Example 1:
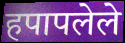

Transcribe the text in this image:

हपापलेले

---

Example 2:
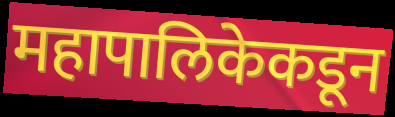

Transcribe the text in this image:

महापालिकेकडून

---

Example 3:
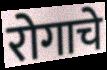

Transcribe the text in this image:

रोगाचे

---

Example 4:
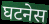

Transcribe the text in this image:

घटनेस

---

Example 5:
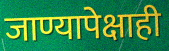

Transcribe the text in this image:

जाण्यापेक्षाही